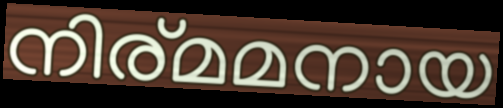
നിര്മമനായ